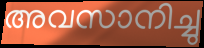
അവസാനിച്ചു